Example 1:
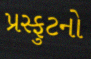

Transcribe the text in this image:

પ્રસ્ફુટનો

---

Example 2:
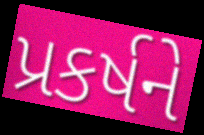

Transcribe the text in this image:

પ્રકર્ષને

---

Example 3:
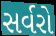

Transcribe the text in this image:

સર્વરો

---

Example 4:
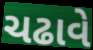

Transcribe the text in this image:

ચઢાવે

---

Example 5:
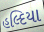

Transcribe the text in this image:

હલ્દિયા